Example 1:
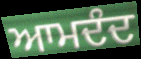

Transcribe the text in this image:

ਆਮਦੰਦ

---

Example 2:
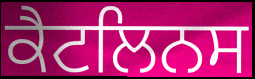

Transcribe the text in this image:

ਕੈਟਲਿਨਸ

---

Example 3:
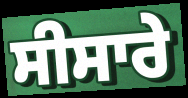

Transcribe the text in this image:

ਸੀਸਾਰੇ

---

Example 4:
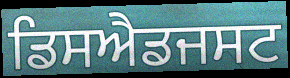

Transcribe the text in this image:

ਡਿਸਐਡਜਸਟ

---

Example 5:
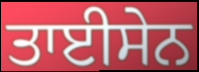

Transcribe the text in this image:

ਤਾਈਸੇਨ